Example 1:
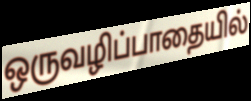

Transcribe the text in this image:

ஒருவழிப்பாதையில்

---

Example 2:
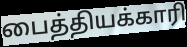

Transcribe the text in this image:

பைத்தியக்காரி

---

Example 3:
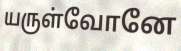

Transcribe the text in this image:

யருள்வோனே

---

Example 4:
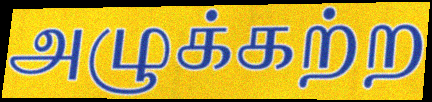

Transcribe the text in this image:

அழுக்கற்ற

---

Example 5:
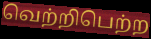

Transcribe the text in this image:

வெற்றிபெற்ற